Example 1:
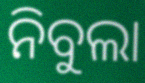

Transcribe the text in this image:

ନିବୁଲା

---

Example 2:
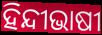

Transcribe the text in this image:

ହିନ୍ଦୀଭାଷୀ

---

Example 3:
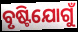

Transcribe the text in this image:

ବୃଷ୍ଟିଯୋଗୁଁ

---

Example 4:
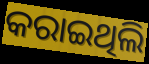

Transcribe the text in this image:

କରାଇଥିଲି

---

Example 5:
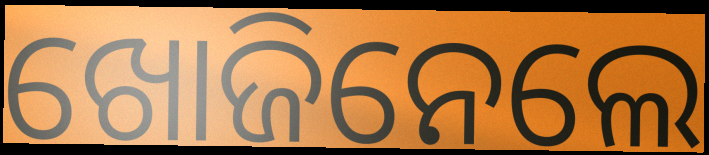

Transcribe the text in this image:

ଖୋଜିନେଲେ